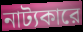
নাট্যকারে